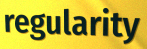
regularity